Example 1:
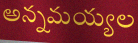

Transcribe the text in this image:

అన్నమయ్యల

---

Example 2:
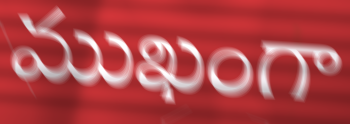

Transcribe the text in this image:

ముఖంగా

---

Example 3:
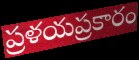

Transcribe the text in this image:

ప్రళయప్రకారం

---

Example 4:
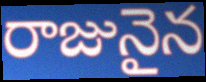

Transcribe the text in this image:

రాజునైన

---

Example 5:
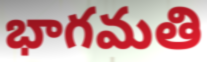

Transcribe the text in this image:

భాగమతి